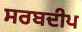
ਸਰਬਦੀਪ